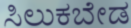
ಸಿಲುಕಬೇಡ